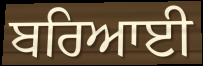
ਬਰਿਆਈ